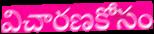
విచారణకోసం